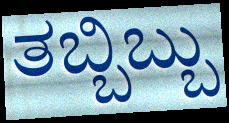
ತಬ್ಬಿಬ್ಬು